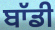
ਬਾੱਡੀ